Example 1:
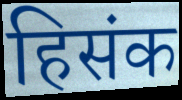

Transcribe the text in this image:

हिसंक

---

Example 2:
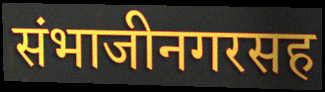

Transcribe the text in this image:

संभाजीनगरसह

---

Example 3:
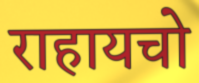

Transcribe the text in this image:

राहायचो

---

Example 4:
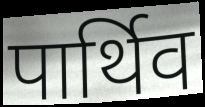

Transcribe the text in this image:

पार्थिव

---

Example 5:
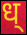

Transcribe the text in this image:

ध्